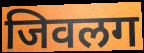
जिवलग